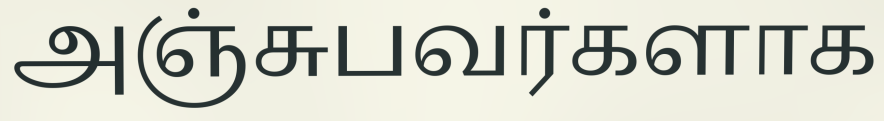
அஞ்சுபவர்களாக